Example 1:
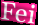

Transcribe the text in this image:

Fei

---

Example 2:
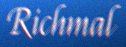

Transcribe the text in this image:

Richmal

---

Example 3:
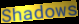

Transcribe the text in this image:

Shadows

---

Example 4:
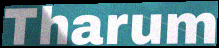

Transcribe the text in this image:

Tharum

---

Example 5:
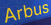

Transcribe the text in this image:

Arbus